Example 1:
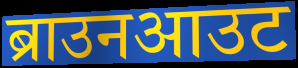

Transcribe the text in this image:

ब्राउनआउट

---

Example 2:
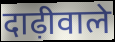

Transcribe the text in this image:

दाढ़ीवाले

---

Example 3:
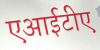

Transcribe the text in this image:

एआईटीए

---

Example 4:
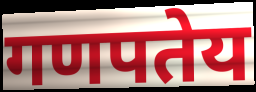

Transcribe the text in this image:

गणपतेय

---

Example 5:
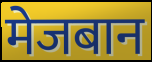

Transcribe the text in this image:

मेजबान